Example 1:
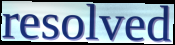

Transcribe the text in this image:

resolved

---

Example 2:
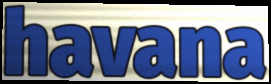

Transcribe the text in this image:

havana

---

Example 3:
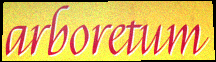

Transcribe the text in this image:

arboretum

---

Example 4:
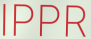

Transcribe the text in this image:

IPPR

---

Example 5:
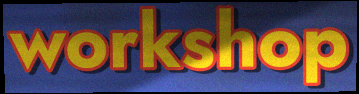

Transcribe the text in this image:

workshop